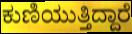
ಕುಣಿಯುತ್ತಿದ್ದಾರೆ